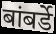
बांबर्डे